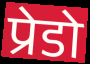
प्रेडो